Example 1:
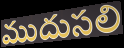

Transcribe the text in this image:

ముదుసలి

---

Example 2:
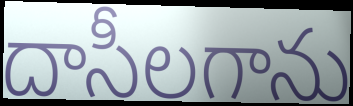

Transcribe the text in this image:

దాసీలగాను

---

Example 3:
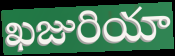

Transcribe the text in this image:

ఖజురియా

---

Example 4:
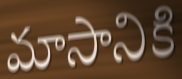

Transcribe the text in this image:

మాసానికి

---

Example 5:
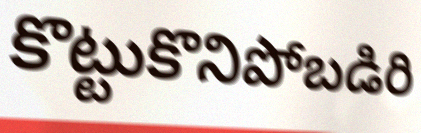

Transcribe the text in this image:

కొట్టుకొనిపోబడిరి